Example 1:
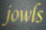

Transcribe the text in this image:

jowls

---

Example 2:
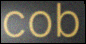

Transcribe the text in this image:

cob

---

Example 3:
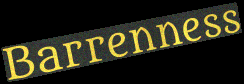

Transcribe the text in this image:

Barrenness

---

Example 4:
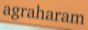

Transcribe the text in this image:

agraharam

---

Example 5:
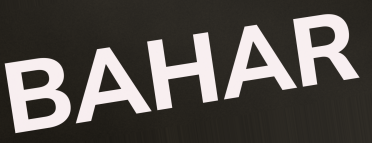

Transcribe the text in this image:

BAHAR